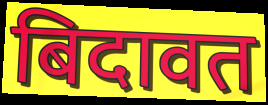
बिदावत